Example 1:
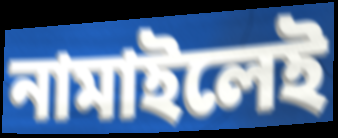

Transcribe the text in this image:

নামাইলেই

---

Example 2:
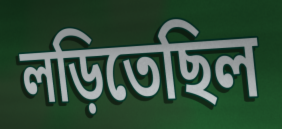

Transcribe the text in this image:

লড়িতেছিল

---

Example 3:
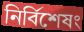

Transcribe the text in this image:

নির্বিশেষং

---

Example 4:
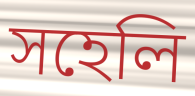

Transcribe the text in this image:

সহেলি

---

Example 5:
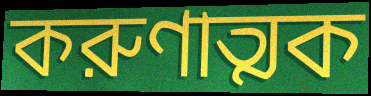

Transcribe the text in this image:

করুণাত্মক